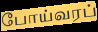
போய்வரப்